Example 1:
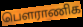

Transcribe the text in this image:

பௌராணிக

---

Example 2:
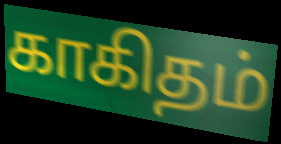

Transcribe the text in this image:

காகிதம்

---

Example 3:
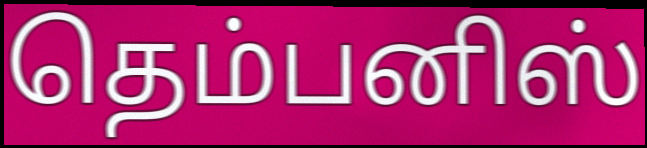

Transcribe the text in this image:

தெம்பனிஸ்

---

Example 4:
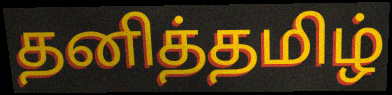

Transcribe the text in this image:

தனித்தமிழ்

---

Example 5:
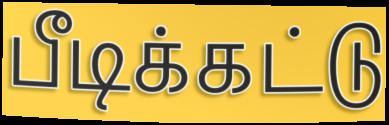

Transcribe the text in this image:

பீடிக்கட்டு